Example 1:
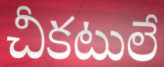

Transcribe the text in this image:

చీకటులే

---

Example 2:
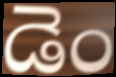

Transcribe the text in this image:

డెం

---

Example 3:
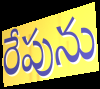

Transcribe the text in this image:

రేపును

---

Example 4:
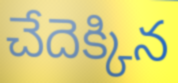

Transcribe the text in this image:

చేదెక్కిన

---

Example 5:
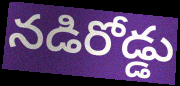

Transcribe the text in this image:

నడిరోడ్డు